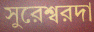
সুরেশ্বরদা